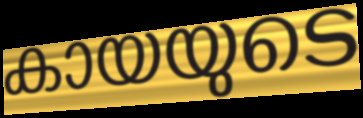
കായയുടെ